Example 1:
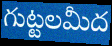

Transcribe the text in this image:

గుట్టలమీద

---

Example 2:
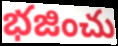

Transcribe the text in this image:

భజించు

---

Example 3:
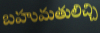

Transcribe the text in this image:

బహుమతులిచ్చి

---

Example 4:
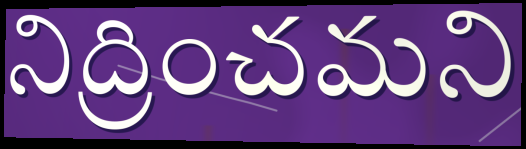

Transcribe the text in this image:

నిద్రించమని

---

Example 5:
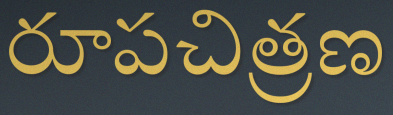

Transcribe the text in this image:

రూపచిత్రణ